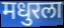
मधुरला